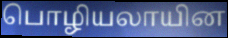
பொழியலாயின